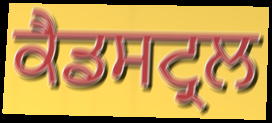
ਕੈਡਸਟ੍ਰਲ